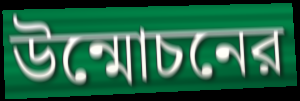
উন্মোচনের